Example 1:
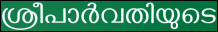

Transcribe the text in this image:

ശ്രീപാർവതിയുടെ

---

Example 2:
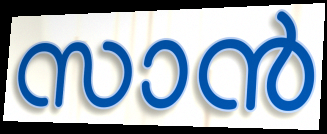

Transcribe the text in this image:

സാൻ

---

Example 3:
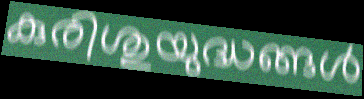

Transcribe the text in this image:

കുരിശുയുദ്ധങ്ങൾ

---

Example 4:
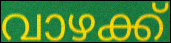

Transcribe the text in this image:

വാഴക്ക്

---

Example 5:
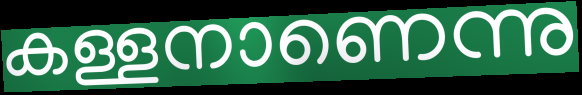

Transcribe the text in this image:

കള്ളനാണെന്നു